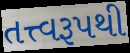
તત્ત્વરૂપથી